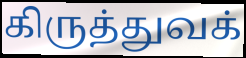
கிருத்துவக்